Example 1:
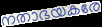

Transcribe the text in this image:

നതാഭയകരേ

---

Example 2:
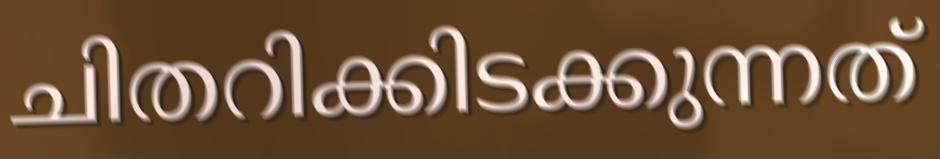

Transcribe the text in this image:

ചിതറിക്കിടക്കുന്നത്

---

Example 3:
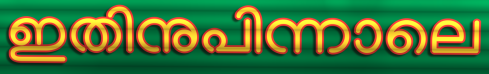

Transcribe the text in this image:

ഇതിനുപിന്നാലെ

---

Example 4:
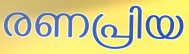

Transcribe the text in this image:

രണപ്രിയ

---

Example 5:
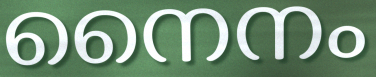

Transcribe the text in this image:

നൈനം